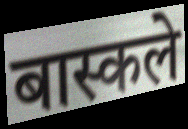
बास्कले